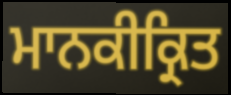
ਮਾਨਕੀਕ੍ਰਿਤ